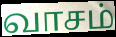
வாசம்